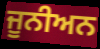
ਜੂਨੀਅਨ